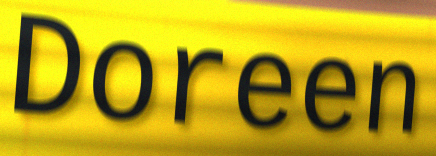
Doreen